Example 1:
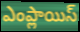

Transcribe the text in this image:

ఎంప్లాయిస్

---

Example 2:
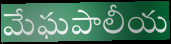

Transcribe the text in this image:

మేఘపాలీయ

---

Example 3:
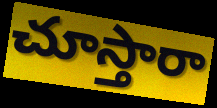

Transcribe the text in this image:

చూస్తారా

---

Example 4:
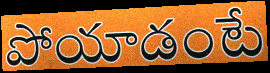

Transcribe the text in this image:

పోయాడంటే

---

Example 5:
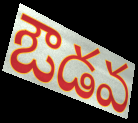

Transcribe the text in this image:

ఔడవ